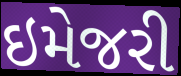
ઇમેજરી